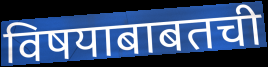
विषयाबाबतची